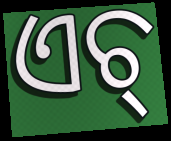
ଏଚ୍